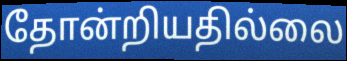
தோன்றியதில்லை